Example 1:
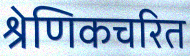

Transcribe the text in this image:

श्रेणिकचरित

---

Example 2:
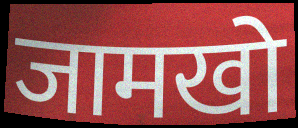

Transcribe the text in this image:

जामखो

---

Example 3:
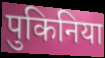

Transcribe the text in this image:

पुकिनिया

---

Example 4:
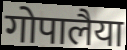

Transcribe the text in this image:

गोपालैया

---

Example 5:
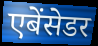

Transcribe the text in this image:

एबेंसेडर